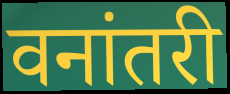
वनांतरी